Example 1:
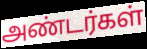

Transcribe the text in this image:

அண்டர்கள்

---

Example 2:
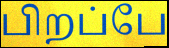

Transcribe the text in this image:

பிறப்பே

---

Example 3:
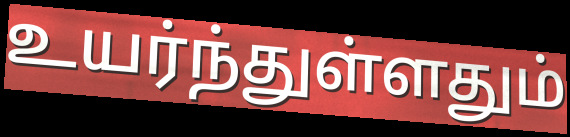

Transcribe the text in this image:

உயர்ந்துள்ளதும்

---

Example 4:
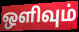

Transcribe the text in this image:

ஒளிவும்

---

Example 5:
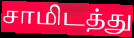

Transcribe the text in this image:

சாமிடத்து